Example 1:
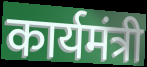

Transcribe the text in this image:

कार्यमंत्री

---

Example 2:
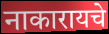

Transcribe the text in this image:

नाकारायचे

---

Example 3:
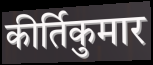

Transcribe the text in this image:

कीर्तिकुमार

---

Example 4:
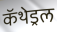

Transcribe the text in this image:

कॅथेड्रल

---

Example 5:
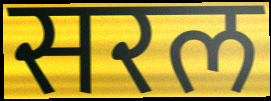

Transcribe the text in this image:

सरल